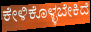
ಕೇಳಿಕೊಳ್ಳಬೇಕಿದೆ